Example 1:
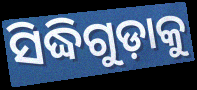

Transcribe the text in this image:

ସିଦ୍ଧିଗୁଡ଼ାକୁ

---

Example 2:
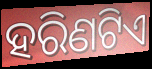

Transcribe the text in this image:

ହରିଣଟିଏ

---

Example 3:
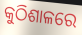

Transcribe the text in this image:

କୁଠିଶାଳରେ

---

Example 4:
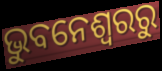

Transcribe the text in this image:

ଭୁବନେଶ୍ୱରରୁ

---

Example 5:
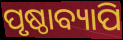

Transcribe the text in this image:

ପୃଷ୍ଠାବ୍ୟାପି